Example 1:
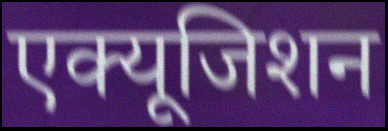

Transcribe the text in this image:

एक्यूजिशन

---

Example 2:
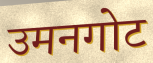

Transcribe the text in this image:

उमनगोट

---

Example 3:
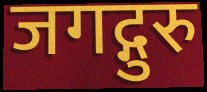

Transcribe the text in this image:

जगद्गुरु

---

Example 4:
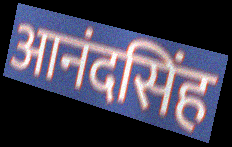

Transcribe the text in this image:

आनंदसिंह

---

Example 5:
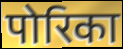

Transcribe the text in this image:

पोरिका